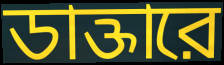
ডাক্তারে